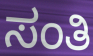
ಸಂತಿ